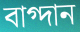
বাগ্দান